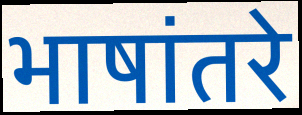
भाषांतरे